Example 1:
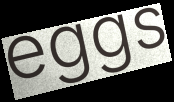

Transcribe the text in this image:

eggs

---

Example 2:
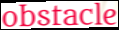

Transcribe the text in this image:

obstacle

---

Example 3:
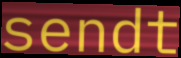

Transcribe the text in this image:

sendt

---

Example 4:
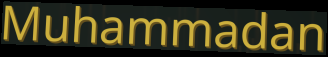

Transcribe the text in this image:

Muhammadan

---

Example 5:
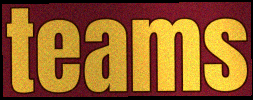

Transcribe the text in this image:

teams